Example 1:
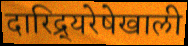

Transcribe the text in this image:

दारिद्र्यरेषेखाली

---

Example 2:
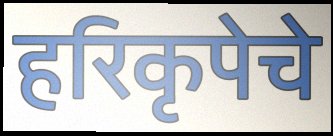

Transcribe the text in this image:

हरिकृपेचे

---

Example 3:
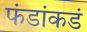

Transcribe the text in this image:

फंडांकडं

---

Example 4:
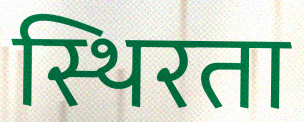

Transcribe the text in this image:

स्थिरता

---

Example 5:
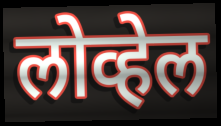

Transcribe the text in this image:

लोव्हेल